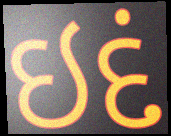
ઇદં